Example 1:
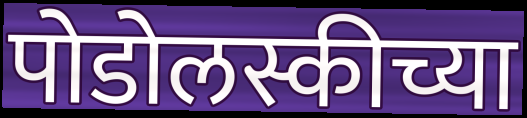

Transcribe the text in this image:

पोडोलस्कीच्या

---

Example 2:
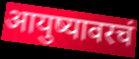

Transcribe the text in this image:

आयुष्यावरचं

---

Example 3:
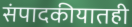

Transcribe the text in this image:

संपादकीयातही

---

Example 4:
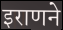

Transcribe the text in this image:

इराणने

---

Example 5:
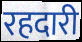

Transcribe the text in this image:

रहदारी